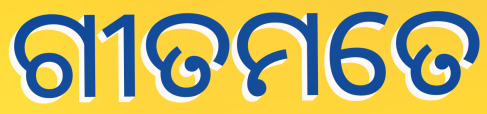
ଗୀତମତେ